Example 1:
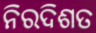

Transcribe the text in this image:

ନିରଦିଶତ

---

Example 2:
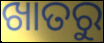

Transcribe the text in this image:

ଖାତରୁ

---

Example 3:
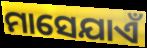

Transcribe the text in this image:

ମାସେଯାଏଁ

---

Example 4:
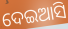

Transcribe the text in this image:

ଦେଇଆସି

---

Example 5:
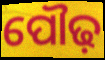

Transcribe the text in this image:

ପୌଢ଼